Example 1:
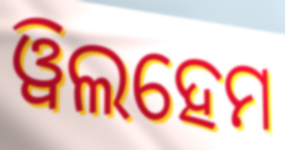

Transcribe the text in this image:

ୱିଲହେମ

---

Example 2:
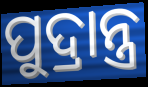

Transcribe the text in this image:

ପୁଦ୍ରାନ୍ତ୍ର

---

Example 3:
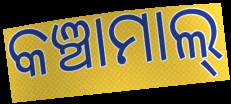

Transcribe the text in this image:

କଞ୍ଚାମାଲ୍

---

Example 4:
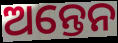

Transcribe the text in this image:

ଅନ୍ତେନ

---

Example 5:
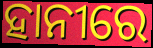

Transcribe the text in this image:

ହାନୀରେ